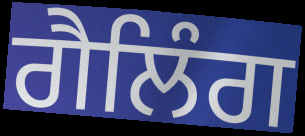
ਗੈਲਿੰਗ